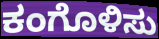
ಕಂಗೊಳಿಸು